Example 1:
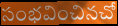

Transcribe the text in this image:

సంభవించినచో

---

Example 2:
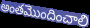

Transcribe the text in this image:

అంతమొందించాలి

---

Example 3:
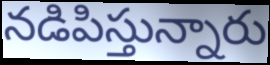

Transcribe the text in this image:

నడిపిస్తున్నారు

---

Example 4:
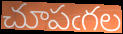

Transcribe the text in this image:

చూపఁగల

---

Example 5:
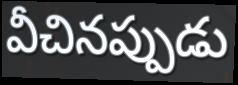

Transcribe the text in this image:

వీచినప్పుడు